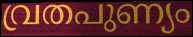
വ്രതപുണ്യം